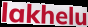
lakhelu